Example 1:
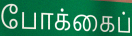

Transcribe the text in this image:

போக்கைப்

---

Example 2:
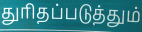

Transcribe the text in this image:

துரிதப்படுத்தும்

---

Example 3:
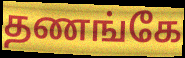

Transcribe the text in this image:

தணங்கே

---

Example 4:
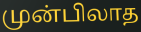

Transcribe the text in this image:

முன்பிலாத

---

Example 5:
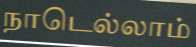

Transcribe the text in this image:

நாடெல்லாம்